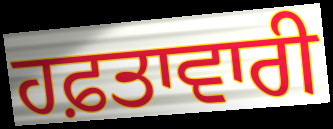
ਹਫ਼ਤਾਵਾਰੀ